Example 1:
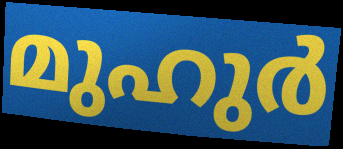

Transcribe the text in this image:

മുഹുർ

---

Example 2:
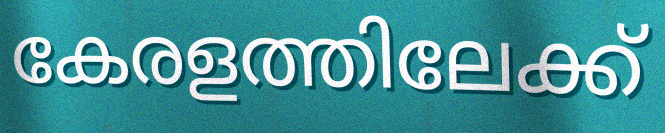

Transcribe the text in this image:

കേരളത്തിലേക്ക്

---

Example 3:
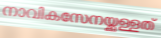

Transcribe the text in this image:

നാവികസേനയ്ക്കുള്ളത്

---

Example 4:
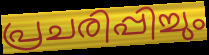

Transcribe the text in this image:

പ്രചരിപ്പിച്ചും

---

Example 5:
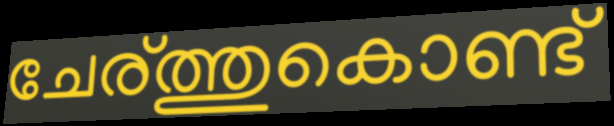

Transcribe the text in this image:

ചേര്ത്തുകൊണ്ട്